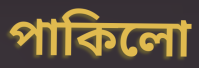
পাকিলো